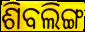
ଶିବଲିଙ୍ଗ